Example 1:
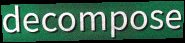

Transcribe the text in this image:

decompose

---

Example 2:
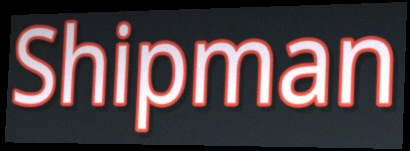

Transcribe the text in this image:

Shipman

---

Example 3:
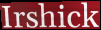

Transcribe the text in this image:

Irshick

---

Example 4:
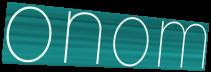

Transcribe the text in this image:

onom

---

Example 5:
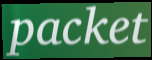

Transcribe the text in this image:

packet